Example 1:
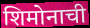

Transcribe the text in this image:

शिमोनाची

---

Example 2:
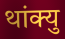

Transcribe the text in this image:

थांक्यु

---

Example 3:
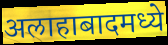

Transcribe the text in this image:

अलाहाबादमध्ये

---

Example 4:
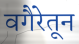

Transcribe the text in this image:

वगैरेतून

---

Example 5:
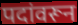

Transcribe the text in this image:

पदांवरून